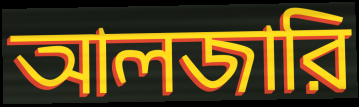
আলজারি